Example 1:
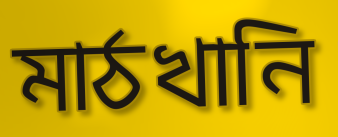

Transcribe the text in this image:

মাঠখানি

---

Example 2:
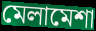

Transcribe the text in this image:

মেলামেশা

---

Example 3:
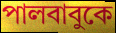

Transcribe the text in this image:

পালবাবুকে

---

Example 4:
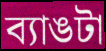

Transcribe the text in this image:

ব্যাঙটা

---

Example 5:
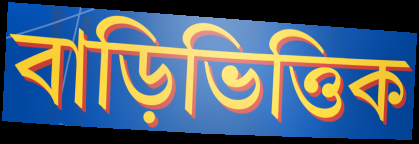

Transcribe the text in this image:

বাড়িভিত্তিক